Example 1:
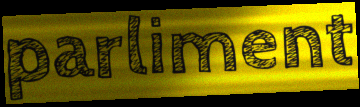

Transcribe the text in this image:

parliment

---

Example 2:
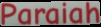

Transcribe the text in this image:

Paraiah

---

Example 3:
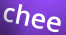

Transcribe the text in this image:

chee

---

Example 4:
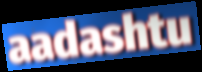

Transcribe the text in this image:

aadashtu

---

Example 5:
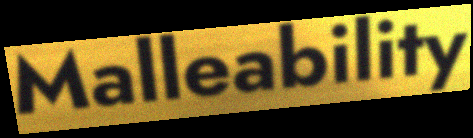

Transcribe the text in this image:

Malleability